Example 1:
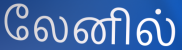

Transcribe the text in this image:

லேனில்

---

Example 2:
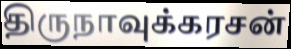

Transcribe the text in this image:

திருநாவுக்கரசன்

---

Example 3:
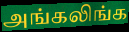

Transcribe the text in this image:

அங்கலிங்க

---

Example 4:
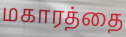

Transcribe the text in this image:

மகாரத்தை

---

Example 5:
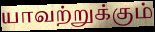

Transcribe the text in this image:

யாவற்றுக்கும்